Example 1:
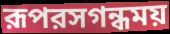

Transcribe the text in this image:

রূপরসগন্ধময়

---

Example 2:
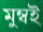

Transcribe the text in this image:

মুম্বই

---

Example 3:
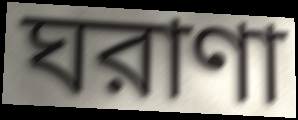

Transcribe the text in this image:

ঘরাণা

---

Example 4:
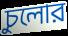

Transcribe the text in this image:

চুলোর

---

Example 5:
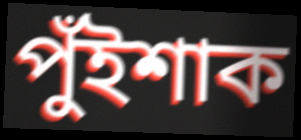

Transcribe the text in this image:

পুঁইশাক